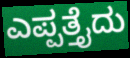
ಎಪ್ಪತ್ತೈದು